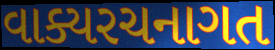
વાક્યરચનાગત